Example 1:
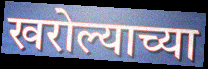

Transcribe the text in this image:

खरोल्याच्या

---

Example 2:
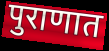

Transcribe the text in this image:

पुराणात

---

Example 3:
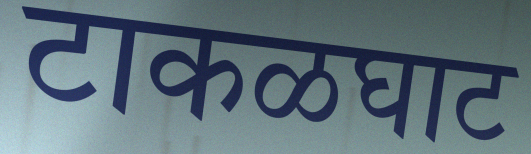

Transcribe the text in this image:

टाकळघाट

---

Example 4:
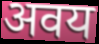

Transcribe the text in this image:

अवय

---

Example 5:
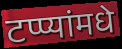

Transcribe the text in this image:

टप्प्यांमधे